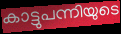
കാട്ടുപന്നിയുടെ